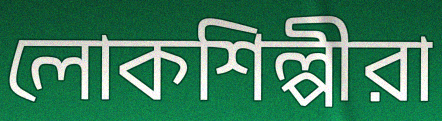
লোকশিল্পীরা